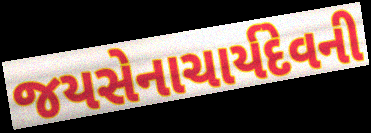
જયસેનાચાર્યદેવની